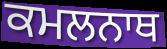
ਕਮਲਨਾਥ